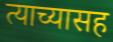
त्याच्यासह